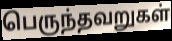
பெருந்தவறுகள்